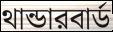
থান্ডারবার্ড